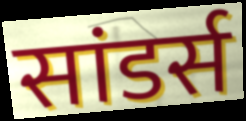
सांडर्स